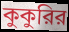
কুকুরির